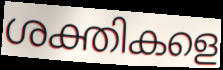
ശക്തികളെ